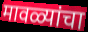
मावळ्यांचा